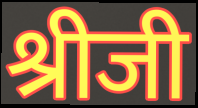
श्रीजी